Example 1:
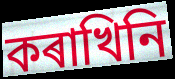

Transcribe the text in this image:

কৰাখিনি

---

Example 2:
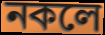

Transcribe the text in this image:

নকলে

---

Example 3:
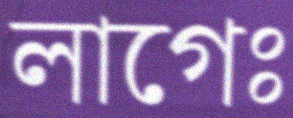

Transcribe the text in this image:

লাগেঃ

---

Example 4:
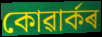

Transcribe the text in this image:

কোৱাৰ্কৰ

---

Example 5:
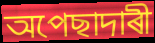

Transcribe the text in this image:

অপেছাদাৰী